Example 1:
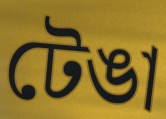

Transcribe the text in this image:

টেঙা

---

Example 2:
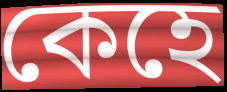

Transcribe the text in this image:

কেহে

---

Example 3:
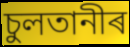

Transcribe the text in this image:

চুলতানীৰ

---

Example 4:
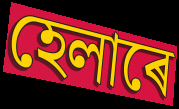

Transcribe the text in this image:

হেলাৰে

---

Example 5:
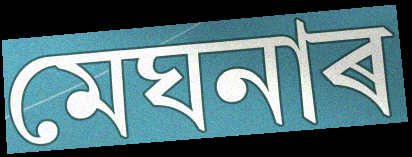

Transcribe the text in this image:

মেঘনাৰ